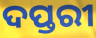
ଦପ୍ତରୀ